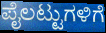
ಪೈಲಟ್ಟುಗಳಿಗೆ